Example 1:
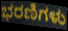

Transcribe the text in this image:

ಭರಣಿಗಳು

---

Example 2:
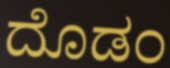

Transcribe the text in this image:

ದೊಡಂ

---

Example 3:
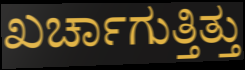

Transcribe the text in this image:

ಖರ್ಚಾಗುತ್ತಿತ್ತು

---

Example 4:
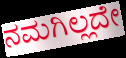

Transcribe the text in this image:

ನಮಗಿಲ್ಲದೇ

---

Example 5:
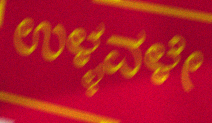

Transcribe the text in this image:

ಉಳ್ಳವಳೇ